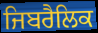
ਜਿਬਰੈਲਿਕ